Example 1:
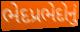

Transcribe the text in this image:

ભેદપ્રભેદોનું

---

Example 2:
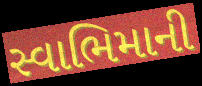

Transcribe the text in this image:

સ્વાભિમાની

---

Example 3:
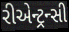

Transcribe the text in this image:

રીએન્ટ્રન્સી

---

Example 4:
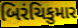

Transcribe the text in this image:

બિરંચિકુમાર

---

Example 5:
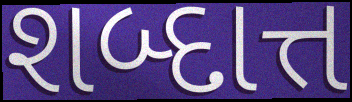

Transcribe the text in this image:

શબ્દાત્ત